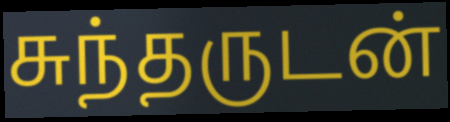
சுந்தருடன்